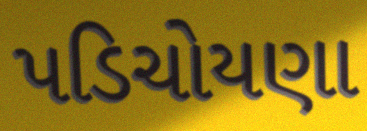
પડિચોયણા